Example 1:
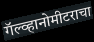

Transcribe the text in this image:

गॅल्व्हानोमीटराचा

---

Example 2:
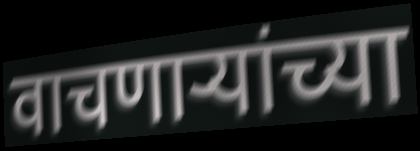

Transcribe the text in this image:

वाचणार्‍यांच्या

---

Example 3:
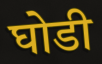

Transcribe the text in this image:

घोडी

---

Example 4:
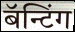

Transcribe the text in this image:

बॅन्टिंग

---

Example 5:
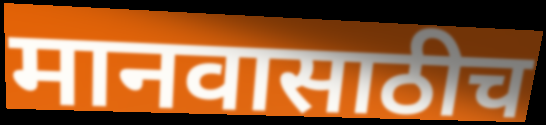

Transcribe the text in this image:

मानवासाठीच